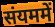
संयममें